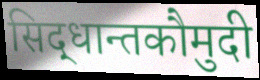
सिद्धान्तकौमुदी